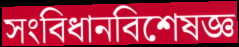
সংবিধানবিশেষজ্ঞ